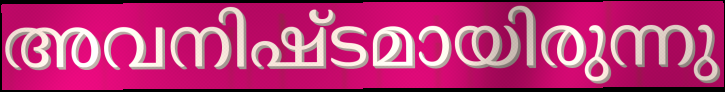
അവനിഷ്ടമായിരുന്നു